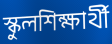
স্কুলশিক্ষার্থী